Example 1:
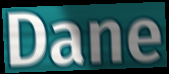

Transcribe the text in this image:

Dane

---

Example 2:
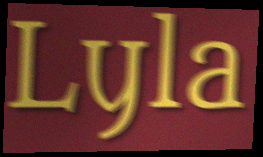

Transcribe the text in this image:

Lyla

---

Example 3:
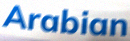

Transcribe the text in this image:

Arabian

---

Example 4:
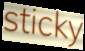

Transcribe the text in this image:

sticky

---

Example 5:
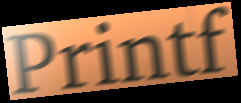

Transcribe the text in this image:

Printf